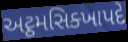
અટ્ઠમસિક્ખાપદે